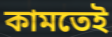
কামতেই